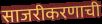
साजरीकरणाची